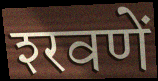
श्रवणें